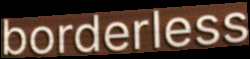
borderless